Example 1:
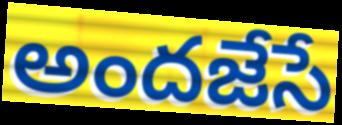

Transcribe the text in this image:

అందజేసే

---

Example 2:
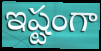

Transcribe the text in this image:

ఇష్టంగా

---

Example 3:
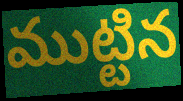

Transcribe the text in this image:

ముట్టిన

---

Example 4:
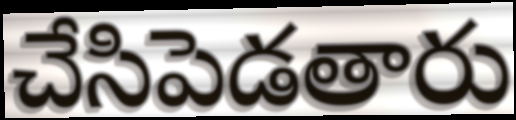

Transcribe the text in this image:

చేసిపెడతారు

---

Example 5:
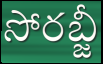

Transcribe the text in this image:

సోరబ్జీ